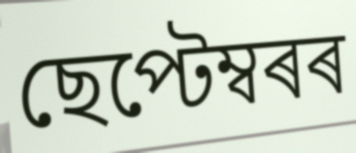
ছেপ্টেম্বৰৰ